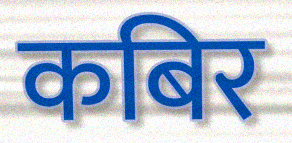
कबिर